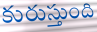
కురుస్తుంది